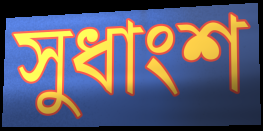
সুধাংশ